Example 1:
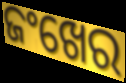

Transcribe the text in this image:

ଜଂଖେର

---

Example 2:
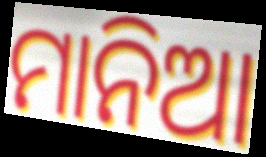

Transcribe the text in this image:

ମାନିଆ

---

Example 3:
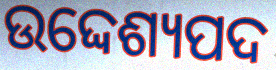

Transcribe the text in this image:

ଉଦ୍ଦେଶ୍ୟପଦ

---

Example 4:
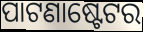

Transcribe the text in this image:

ପାଟଣାଷ୍ଟେଟର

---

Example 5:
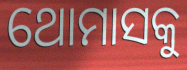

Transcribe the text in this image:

ଥୋମାସକୁ